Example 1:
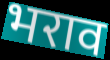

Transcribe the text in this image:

भराव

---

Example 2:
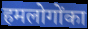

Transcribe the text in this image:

हमलोगोंका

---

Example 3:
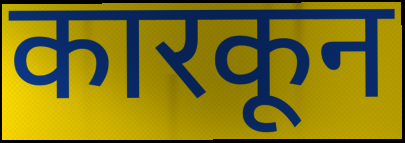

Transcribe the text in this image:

कारकून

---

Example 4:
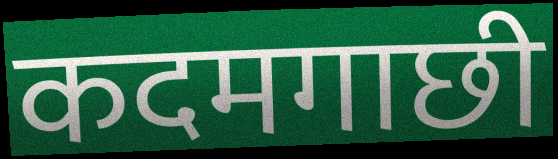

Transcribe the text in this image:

कदमगाछी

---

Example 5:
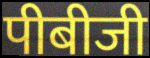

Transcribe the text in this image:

पीबीजी